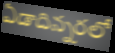
ఏడాదిన్నరలో